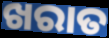
ଖରାତ